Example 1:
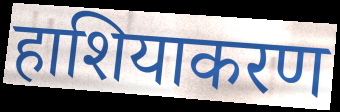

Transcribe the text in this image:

हाशियाकरण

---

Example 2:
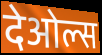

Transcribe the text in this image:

देओल्स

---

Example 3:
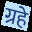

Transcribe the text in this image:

ग्रहे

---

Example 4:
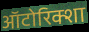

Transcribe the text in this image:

ऑटोरिक्शा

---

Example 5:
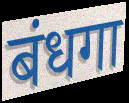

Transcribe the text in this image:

बंधगा